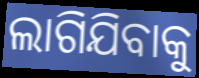
ଲାଗିଯିବାକୁ